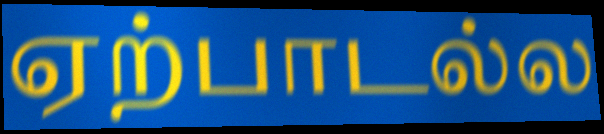
ஏற்பாடல்ல